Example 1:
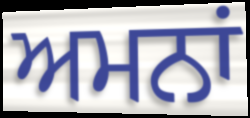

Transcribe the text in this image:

ਅਮਨਾਂ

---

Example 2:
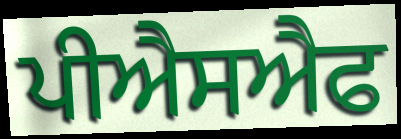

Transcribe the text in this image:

ਪੀਐਸਐਫ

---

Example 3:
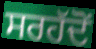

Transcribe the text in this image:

ਸਰਹੱਦੋਂ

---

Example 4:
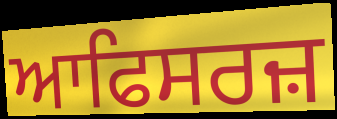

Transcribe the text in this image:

ਆਫਿਸਰਜ਼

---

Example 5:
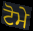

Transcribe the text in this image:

ਟੋਮੇ